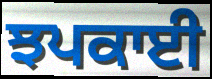
ਝਪਕਾਈ